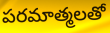
పరమాత్మలతో